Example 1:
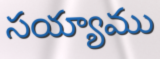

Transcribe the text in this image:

సయ్యాము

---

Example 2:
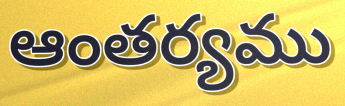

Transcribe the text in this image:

ఆంతర్యము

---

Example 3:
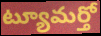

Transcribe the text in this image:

ట్యూమర్తో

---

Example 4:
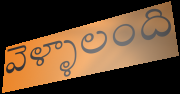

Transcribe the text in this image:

వెళ్ళాలంది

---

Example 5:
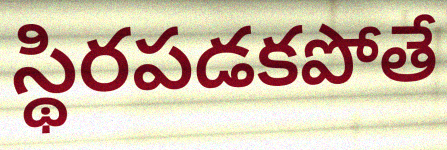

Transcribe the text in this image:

స్థిరపడకపోతే